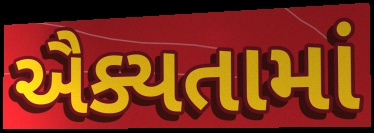
ઐક્યતામાં